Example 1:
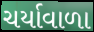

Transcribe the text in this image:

ચર્યાવાળા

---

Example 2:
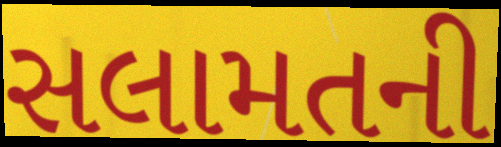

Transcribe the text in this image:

સલામતની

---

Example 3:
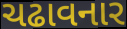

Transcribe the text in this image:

ચઢાવનાર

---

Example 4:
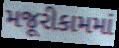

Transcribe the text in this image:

મજૂરીકામમાં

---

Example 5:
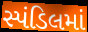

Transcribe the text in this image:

સ્પંડિલમાં